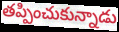
తప్పించుకున్నాడు